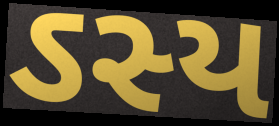
ઽસ્ય